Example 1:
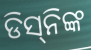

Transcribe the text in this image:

ଡିସ୍‌ନିଙ୍କ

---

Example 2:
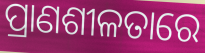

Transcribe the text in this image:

ପ୍ରାଣଶୀଳତାରେ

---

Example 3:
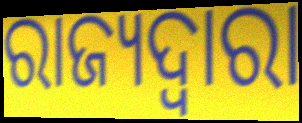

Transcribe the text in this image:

ରାଜ୍ୟଦ୍ୱାରା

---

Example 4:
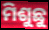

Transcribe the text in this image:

ମିଶୁଛୁ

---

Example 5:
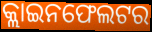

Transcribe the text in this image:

କ୍ଲାଇନଫେଲଟର